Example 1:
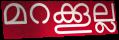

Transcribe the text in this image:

മറക്കൂല്ല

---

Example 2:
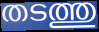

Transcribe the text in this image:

തടത്തു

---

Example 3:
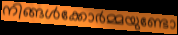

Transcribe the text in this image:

നിങ്ങൾക്കോർമ്മയുണ്ടോ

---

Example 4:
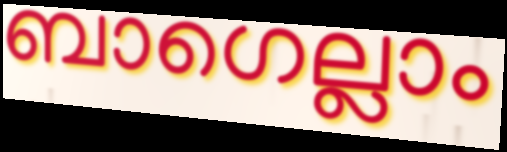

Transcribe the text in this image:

ബാഗെല്ലാം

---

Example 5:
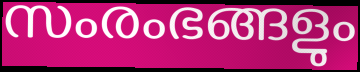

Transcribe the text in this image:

സംരംഭങ്ങളും